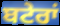
ਬਟੇਰਾਂ